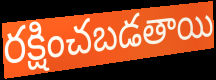
రక్షించబడతాయి